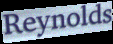
Reynolds